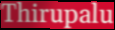
Thirupalu